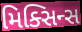
મિક્સિન્સ